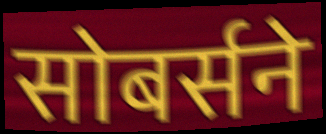
सोबर्सने